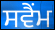
ਸਵੈਂਮ